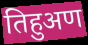
तिहुअण